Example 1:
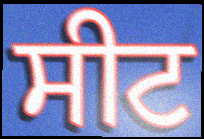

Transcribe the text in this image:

ਸੀਟ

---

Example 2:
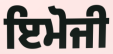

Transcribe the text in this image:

ਇਮੋਜੀ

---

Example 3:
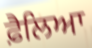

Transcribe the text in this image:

ਫ਼ੈਲਿਆ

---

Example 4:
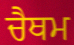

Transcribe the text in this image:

ਚੈਥਮ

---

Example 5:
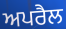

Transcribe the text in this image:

ਅਪਰੈਲ